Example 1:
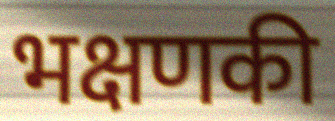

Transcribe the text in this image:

भक्षणकी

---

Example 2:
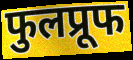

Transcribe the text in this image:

फुलप्रूफ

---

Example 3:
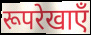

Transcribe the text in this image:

रूपरेखाएँ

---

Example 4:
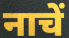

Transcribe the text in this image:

नाचें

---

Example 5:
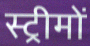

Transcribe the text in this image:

स्ट्रीमों